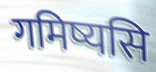
गमिष्यसि